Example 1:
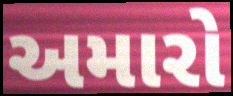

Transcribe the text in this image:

અમારો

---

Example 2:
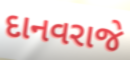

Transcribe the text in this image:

દાનવરાજે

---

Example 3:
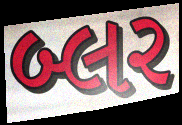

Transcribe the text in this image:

બ્લર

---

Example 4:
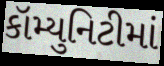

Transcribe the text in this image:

કૉમ્યુનિટીમાં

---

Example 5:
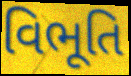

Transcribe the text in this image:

વિભૂતિ